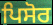
ਪਿਸੋਰ